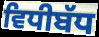
ਵਿਧੀਬੱਧ